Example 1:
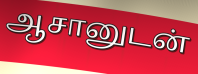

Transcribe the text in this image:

ஆசானுடன்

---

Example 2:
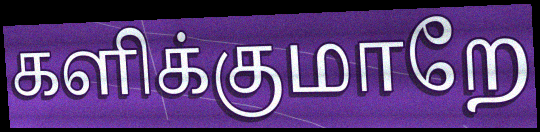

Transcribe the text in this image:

களிக்குமாறே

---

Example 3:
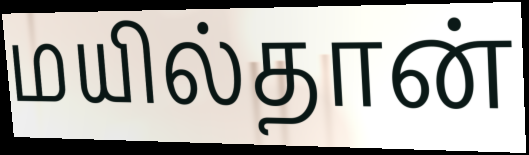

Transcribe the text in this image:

மயில்தான்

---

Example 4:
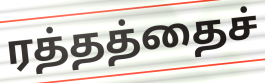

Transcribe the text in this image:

ரத்தத்தைச்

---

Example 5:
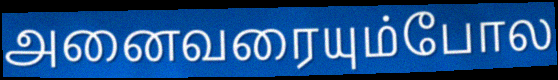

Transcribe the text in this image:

அனைவரையும்போல